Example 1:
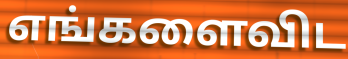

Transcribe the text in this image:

எங்களைவிட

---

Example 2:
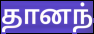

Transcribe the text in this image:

தானந்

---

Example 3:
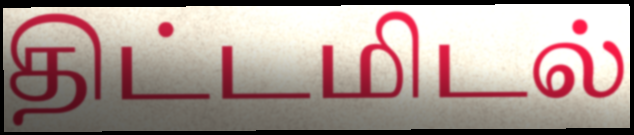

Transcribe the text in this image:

திட்டமிடல்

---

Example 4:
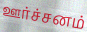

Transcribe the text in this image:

ஊர்ச்சனம்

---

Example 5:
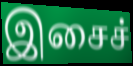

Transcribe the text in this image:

இசைச்